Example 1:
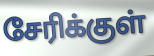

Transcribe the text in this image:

சேரிக்குள்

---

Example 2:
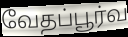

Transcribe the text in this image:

வேதப்பூர்வ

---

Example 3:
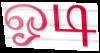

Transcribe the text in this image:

ஓடி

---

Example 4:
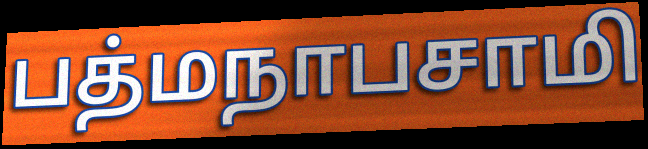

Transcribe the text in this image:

பத்மநாபசாமி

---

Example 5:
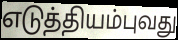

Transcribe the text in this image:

எடுத்தியம்புவது